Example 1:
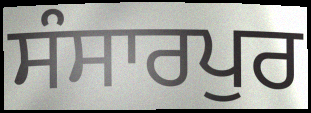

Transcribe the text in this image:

ਸੰਸਾਰਪੁਰ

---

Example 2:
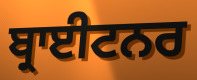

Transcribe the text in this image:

ਬ੍ਰਾਈਟਨਰ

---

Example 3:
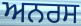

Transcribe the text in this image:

ਅਨਰਸ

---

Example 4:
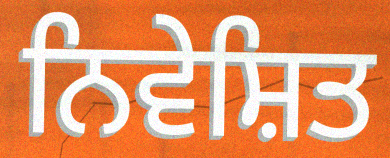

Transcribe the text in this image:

ਨਿਵੇਸ਼ਿਤ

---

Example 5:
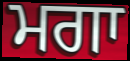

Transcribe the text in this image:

ਮਗਾ